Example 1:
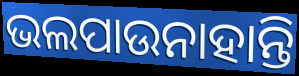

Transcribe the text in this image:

ଭଲପାଉନାହାନ୍ତି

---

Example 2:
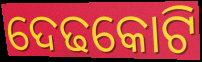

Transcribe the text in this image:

ଦେଢକୋଟି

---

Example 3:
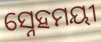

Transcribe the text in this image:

ସ୍ନେହମୟୀ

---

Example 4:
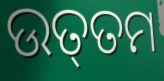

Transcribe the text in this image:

ଉତ୍‌ତମ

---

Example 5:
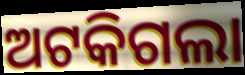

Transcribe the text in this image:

ଅଟକିଗଲା